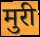
मुरी